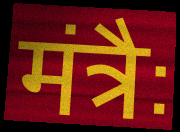
मंत्रैः